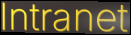
Intranet